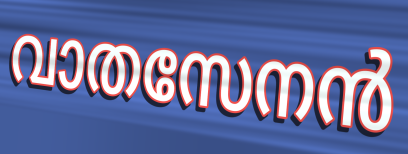
വാതസേനൻ